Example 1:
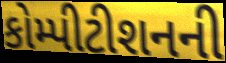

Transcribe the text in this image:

કોમ્પીટીશનની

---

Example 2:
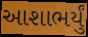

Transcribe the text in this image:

આશાભર્યું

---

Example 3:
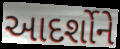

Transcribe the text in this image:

આદર્શોને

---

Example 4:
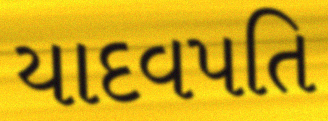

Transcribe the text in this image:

યાદવપતિ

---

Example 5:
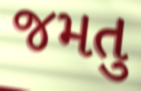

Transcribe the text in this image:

જમતુ